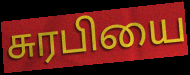
சுரபியை